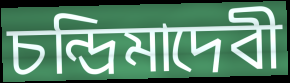
চন্দ্রিমাদেবী